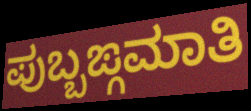
ಪುಬ್ಬಙ್ಗಮಾತಿ